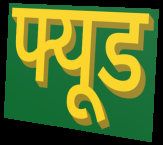
फ्यूड